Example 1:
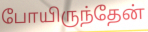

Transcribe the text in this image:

போயிருந்தேன்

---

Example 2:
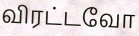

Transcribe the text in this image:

விரட்டவோ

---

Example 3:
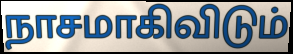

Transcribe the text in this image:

நாசமாகிவிடும்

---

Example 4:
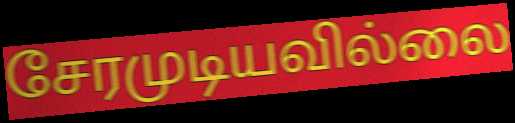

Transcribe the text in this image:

சேரமுடியவில்லை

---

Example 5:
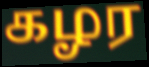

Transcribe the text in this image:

கழர